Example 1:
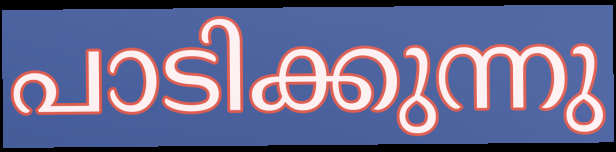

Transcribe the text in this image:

പാടിക്കുന്നു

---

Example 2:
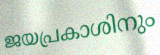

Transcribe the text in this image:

ജയപ്രകാശിനും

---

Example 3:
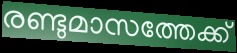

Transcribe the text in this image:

രണ്ടുമാസത്തേക്ക്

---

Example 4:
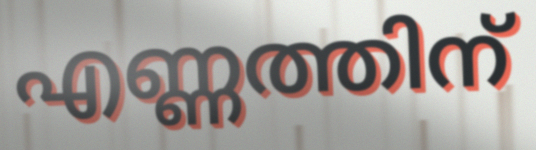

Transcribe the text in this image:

എണ്ണത്തിന്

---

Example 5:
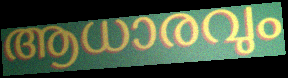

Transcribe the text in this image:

ആധാരവും